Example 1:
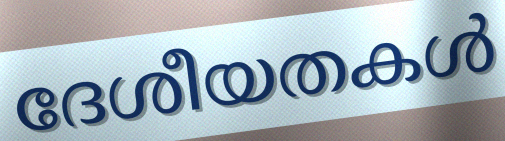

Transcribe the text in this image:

ദേശീയതകൾ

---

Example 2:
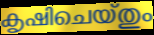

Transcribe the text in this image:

കൃഷിചെയ്തും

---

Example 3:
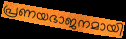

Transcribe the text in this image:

പ്രണയഭാജനമായി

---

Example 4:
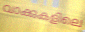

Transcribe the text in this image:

വാക്കുകളിലെ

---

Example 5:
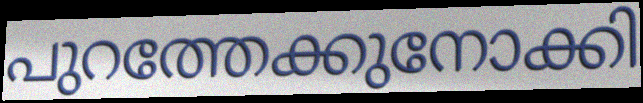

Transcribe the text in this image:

പുറത്തേക്കുനോക്കി